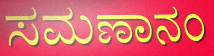
ಸಮಣಾನಂ